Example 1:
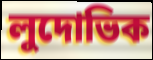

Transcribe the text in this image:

লুদোভিক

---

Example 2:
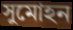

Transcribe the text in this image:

সুমোহন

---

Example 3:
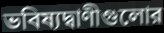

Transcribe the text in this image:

ভবিষ্যদ্বাণীগুলোর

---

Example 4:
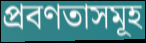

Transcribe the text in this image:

প্রবণতাসমূহ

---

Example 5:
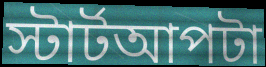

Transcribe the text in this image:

স্টার্টআপটা